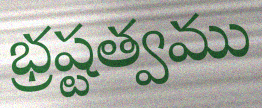
భ్రష్టత్వము